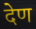
देण